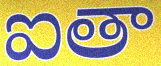
ఐతా